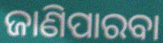
ଜାଣିପାରବା